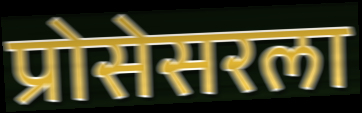
प्रोसेसरला